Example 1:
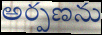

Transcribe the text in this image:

అర్పణను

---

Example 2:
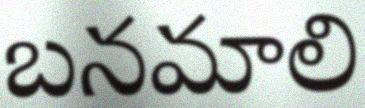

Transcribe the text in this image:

బనమాలి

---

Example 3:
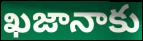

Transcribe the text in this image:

ఖజానాకు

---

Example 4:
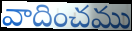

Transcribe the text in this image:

వాదించము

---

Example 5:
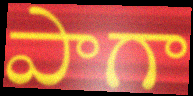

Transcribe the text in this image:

పాగా